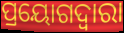
ପ୍ରୟୋଗଦ୍ୱାରା